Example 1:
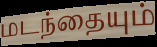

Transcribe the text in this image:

மடந்தையும்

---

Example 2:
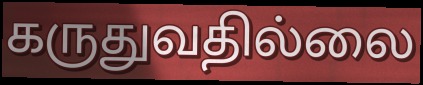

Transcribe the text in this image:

கருதுவதில்லை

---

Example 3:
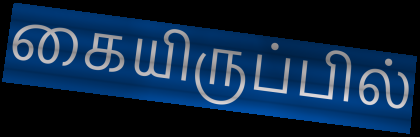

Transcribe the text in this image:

கையிருப்பில்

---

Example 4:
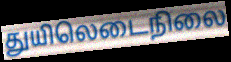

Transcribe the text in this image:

துயிலெடைநிலை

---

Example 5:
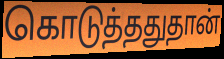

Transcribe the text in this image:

கொடுத்ததுதான்